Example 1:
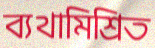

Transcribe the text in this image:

ব্যথামিশ্রিত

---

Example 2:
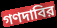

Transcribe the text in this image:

গণদাবির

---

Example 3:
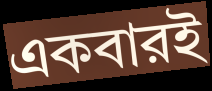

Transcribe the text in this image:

একবারই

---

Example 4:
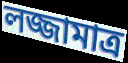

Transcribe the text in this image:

লজ্জামাত্র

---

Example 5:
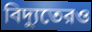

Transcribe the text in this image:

বিদ্যুতেরও